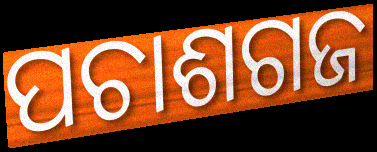
ପଚାଶଗଜ